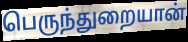
பெருந்துறையான்